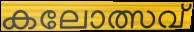
കലോത്സവ്